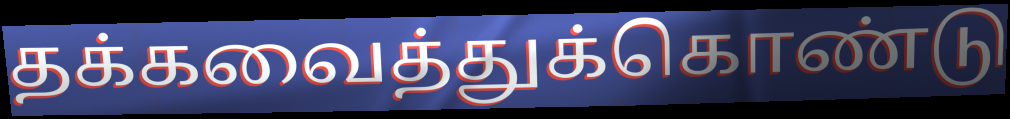
தக்கவைத்துக்கொண்டு